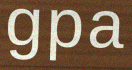
gpa